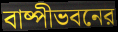
বাষ্পীভবনের